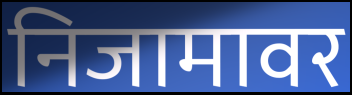
निजामावर